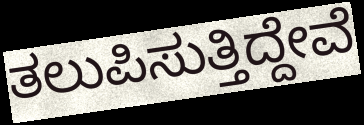
ತಲುಪಿಸುತ್ತಿದ್ದೇವೆ